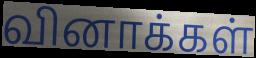
வினாக்கள்